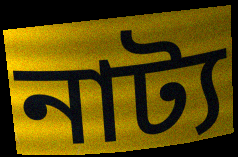
নাট্য